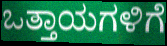
ಒತ್ತಾಯಗಳಿಗೆ